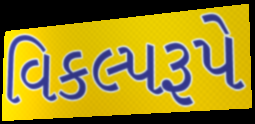
વિકલ્પરૂપે